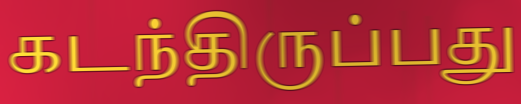
கடந்திருப்பது